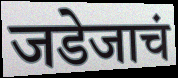
जडेजाचं